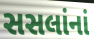
સસલાંનાં